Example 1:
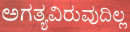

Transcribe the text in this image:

ಅಗತ್ಯವಿರುವುದಿಲ್ಲ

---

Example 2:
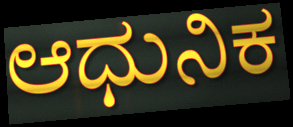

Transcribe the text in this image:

ಆಧುನಿಕ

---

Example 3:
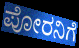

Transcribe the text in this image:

ಪೋರನಿಗೆ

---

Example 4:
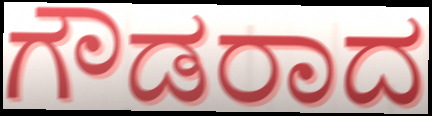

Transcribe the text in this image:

ಗೌಡರಾದ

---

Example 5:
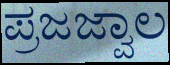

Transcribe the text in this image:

ಪ್ರಜಜ್ವಾಲ